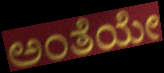
ಅಂತೆಯೇ